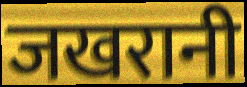
जखरानी